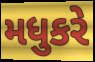
મધુકરે